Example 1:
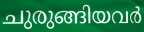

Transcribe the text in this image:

ചുരുങ്ങിയവർ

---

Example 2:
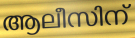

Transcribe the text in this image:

ആലീസിന്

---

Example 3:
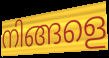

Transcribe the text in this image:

നിങ്ങളെ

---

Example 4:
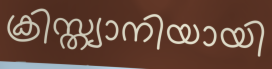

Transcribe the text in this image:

ക്രിസ്ത്യാനിയായി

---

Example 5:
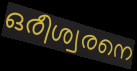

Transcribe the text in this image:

ഒരീശ്വരനെ